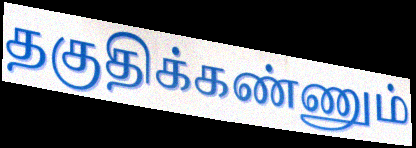
தகுதிக்கண்ணும்